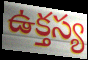
ఉక్తస్య